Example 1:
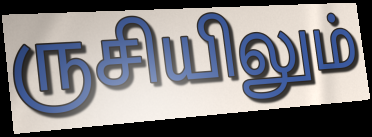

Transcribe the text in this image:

ருசியிலும்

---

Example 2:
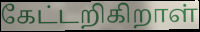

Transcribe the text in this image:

கேட்டறிகிறாள்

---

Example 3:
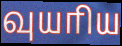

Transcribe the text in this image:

வுயரிய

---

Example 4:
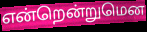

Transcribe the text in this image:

என்றென்றுமென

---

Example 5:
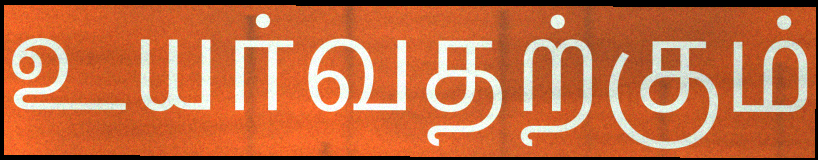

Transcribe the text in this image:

உயர்வதற்கும்